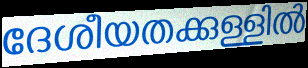
ദേശീയതക്കുള്ളിൽ